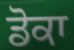
ਡੋਕਾ